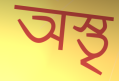
অস্তৃ